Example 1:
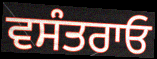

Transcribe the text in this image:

ਵਸੰਤਰਾਓ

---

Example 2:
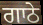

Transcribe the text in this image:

ਗਾਠੇ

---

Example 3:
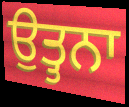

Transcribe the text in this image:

ਉਤ੍ਤਨਾ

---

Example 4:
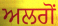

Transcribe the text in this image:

ਅਲਗੋਂ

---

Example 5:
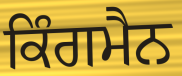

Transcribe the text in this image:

ਕਿੰਗਮੈਨ